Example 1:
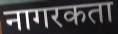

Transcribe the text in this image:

नागरकता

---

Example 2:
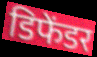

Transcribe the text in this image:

डिफेंडर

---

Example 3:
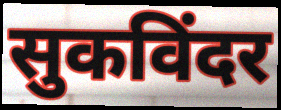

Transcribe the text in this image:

सुकविंदर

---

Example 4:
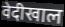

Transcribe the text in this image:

वेदीखाल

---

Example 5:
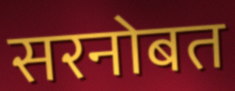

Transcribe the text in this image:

सरनोबत